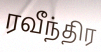
ரவீந்திர